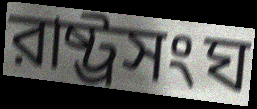
রাষ্ট্রসংঘ